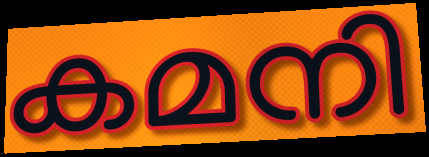
കമനി